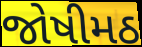
જોષીમઠ